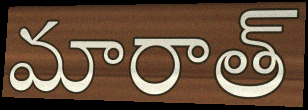
మారాత్